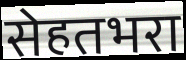
सेहतभरा